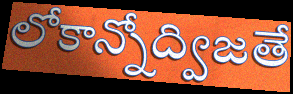
లోకాన్నోద్విజతే